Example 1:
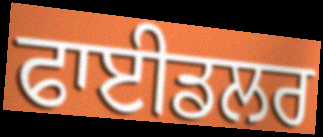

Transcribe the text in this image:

ਫਾਈਡਲਰ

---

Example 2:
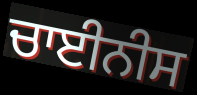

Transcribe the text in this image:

ਚਾਈਨੀਸ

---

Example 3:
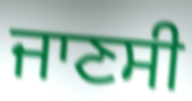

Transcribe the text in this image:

ਜਾਣਸੀ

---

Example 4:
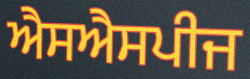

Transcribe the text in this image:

ਐਸਐਸਪੀਜ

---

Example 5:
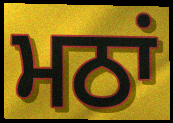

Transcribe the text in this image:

ਮਠਾਂ